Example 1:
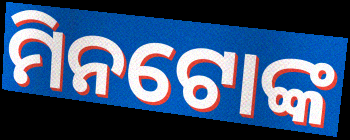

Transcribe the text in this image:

ମିନଟୋଙ୍କ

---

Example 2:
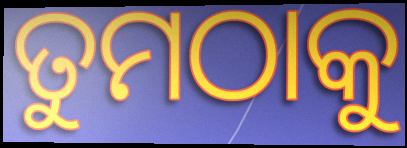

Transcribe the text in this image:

ତୁମଠାକୁ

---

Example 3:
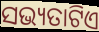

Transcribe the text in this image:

ସଭ୍ୟତାଟିଏ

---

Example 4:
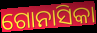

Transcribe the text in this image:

ଗୋନାସିକା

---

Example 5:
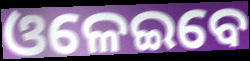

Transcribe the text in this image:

ଓଳେଇବେ